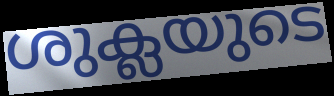
ശുക്ലയുടെ